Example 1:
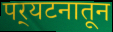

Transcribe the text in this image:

पर्यटनातून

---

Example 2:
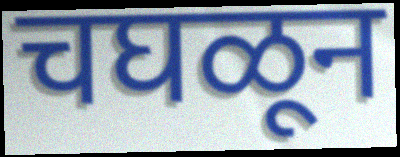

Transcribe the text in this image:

चघळून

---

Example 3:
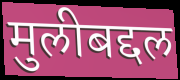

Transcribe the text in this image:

मुलीबद्दल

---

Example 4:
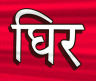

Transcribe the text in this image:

घिर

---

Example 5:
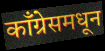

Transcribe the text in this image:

काँग्रेसमधून